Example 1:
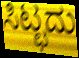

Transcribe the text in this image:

ಸಿಟ್ಟದು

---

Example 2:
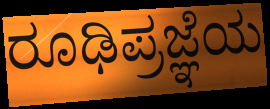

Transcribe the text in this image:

ರೂಢಿಪ್ರಜ್ಞೆಯ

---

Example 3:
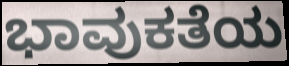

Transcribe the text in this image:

ಭಾವುಕತೆಯ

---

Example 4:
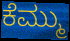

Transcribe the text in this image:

ಕೆಮ್ಮು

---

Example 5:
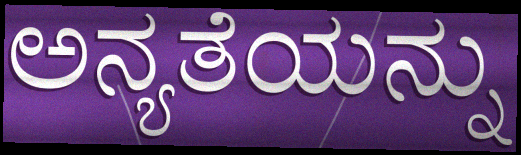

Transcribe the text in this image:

ಅನ್ಯತೆಯನ್ನು